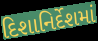
દિશાનિર્દેશમાં